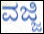
ವಜ್ಜಿ